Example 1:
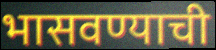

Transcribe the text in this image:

भासवण्याची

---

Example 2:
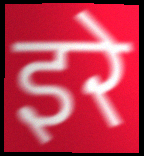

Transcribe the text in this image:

इरे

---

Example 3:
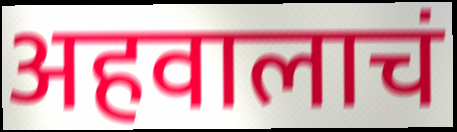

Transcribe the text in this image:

अहवालाचं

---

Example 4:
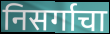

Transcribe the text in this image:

निसर्गाचा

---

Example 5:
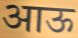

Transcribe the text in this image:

आऊ